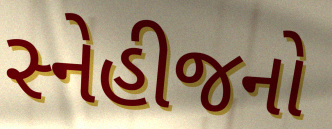
સ્નેહીજનો